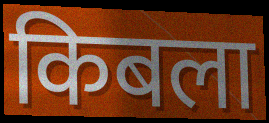
किबला